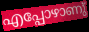
എപ്പോഴാണു്